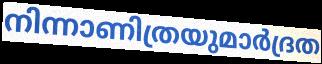
നിന്നാണിത്രയുമാർദ്രത